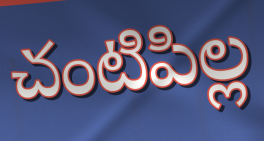
చంటిపిల్ల